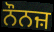
ਨੌਨਜ਼